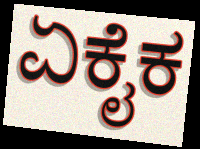
ಏಕೈಕ